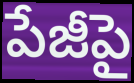
పేజీపై